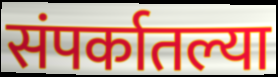
संपर्कातल्या